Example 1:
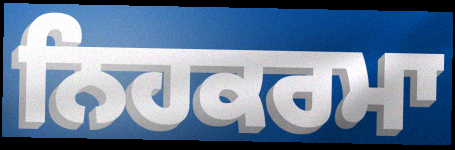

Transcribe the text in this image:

ਨਿਹਕਰਮਾ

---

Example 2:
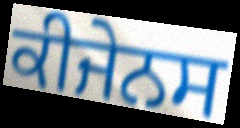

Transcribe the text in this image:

ਕੀਜੇਨਸ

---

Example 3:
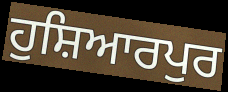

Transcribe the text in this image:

ਹੁਸ਼ਿਆਰਪੁਰ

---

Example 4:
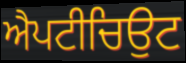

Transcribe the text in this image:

ਐਪਟੀਚਿਉਟ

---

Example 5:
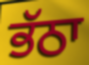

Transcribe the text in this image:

ਭੱਠਾ